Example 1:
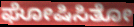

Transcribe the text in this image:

ಘೋಷಿಸಿತೋ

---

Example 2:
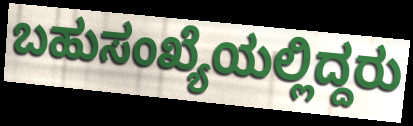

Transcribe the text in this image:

ಬಹುಸಂಖ್ಯೆಯಲ್ಲಿದ್ದರು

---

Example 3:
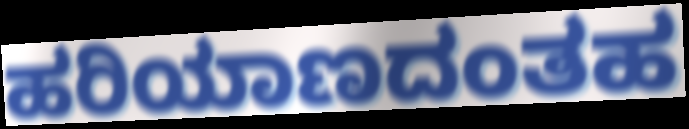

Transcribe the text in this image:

ಹರಿಯಾಣದಂತಹ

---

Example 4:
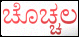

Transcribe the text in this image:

ಚೊಚ್ಚಲ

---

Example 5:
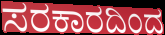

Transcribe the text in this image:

ಸರಕಾರದಿಂದ